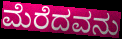
ಮೆರೆದವನು